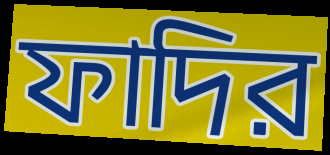
ফাদির